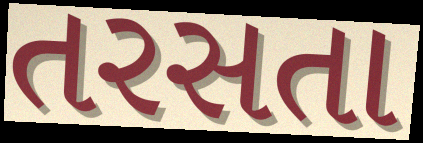
તરસતા